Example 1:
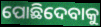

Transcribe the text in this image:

ପୋଛିଦେବାକୁ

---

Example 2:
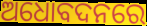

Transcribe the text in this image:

ଅଧୋବଦନରେ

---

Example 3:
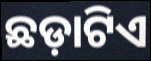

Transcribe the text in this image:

ଛଡ଼ାଟିଏ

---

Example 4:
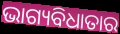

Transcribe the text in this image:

ଭାଗ୍ୟବିଧାତାର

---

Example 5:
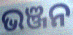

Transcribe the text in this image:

ଭଞ୍ଜନ